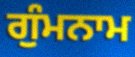
ਗੁੰਮਨਾਮ